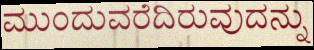
ಮುಂದುವರೆದಿರುವುದನ್ನು